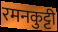
रमनकुट्टी